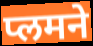
प्लमने